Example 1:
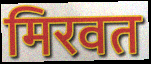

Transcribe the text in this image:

मिरवत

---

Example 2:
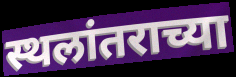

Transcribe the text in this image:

स्थलांतराच्या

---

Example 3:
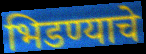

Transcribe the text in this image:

भिडण्याचे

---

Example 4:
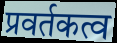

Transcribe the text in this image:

प्रवर्तकत्व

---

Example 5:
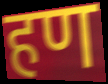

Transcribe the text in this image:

हण